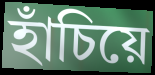
হাঁচিয়ে